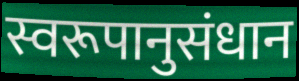
स्वरूपानुसंधान